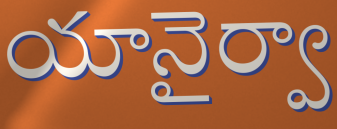
యానైర్వా